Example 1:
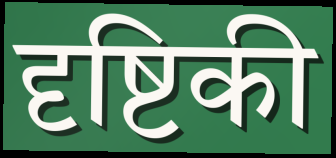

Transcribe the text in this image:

दृष्टिकी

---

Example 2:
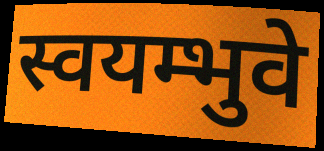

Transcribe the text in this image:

स्वयम्भुवे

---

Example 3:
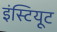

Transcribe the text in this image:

इंस्टियूट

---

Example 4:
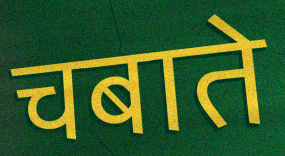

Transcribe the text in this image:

चबाते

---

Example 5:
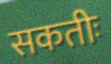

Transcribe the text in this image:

सकतीः